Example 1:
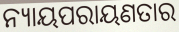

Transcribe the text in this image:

ନ୍ୟାୟପରାୟଣତାର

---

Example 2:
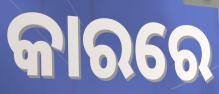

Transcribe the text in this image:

କାରରେ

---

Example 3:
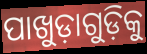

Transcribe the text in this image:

ପାଖୁଡ଼ାଗୁଡ଼ିକୁ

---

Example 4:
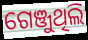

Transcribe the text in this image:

ଗେଞ୍ଜୁଥିଲି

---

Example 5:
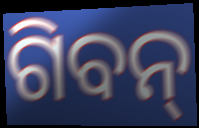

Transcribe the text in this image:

ଗିବନ୍